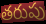
తరుపు